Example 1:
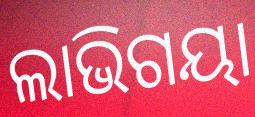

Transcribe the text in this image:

ଲାଭିଗୟା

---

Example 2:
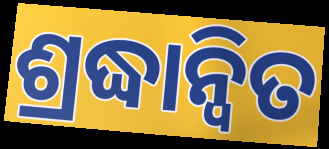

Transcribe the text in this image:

ଶ୍ରଦ୍ଧାନ୍ୱିତ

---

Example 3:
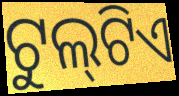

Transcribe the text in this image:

ଟୁଲ୍‍ଟିଏ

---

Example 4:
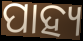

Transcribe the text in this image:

ପାହ୍ୟ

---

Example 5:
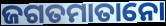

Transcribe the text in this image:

ଜଗତମାତାନୋ